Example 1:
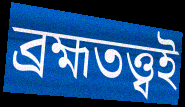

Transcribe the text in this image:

ব্রহ্মতত্ত্বই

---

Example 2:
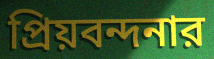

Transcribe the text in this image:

প্রিয়বন্দনার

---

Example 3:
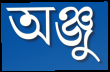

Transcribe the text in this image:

অঞ্জু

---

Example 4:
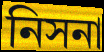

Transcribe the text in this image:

নিসনা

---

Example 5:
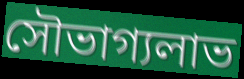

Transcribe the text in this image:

সৌভাগ্যলাভ